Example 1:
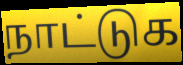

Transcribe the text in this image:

நாட்டுக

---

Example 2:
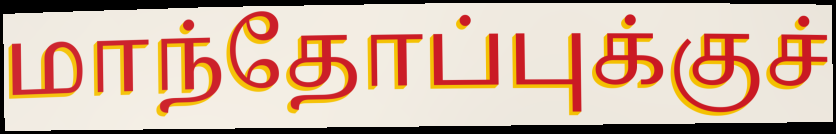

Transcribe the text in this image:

மாந்தோப்புக்குச்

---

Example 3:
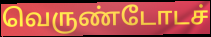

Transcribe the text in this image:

வெருண்டோடச்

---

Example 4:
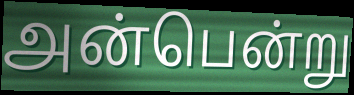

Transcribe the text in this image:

அன்பென்று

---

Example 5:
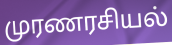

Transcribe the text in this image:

முரணரசியல்